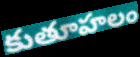
కుతూహలం